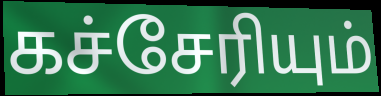
கச்சேரியும்